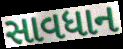
સાવધાન